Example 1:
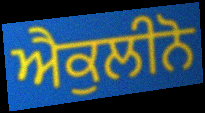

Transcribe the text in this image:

ਐਕੁਲੀਨੋ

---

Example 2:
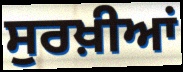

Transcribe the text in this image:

ਸੁਰਖ਼ੀਆਂ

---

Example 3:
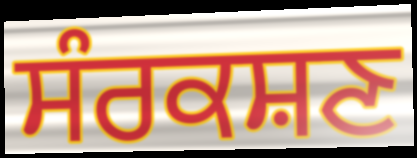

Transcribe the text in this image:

ਸੰਰਕਸ਼ਣ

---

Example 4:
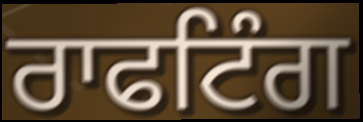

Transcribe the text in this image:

ਰਾਫਟਿੰਗ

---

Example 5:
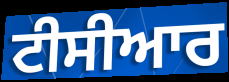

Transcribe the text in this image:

ਟੀਸੀਆਰ